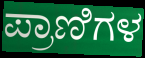
ಪ್ರಾಣಿಗಳ